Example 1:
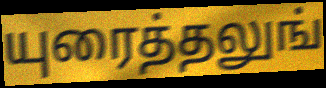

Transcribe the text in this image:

யுரைத்தலுங்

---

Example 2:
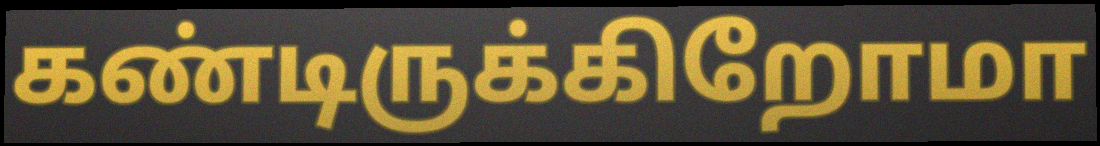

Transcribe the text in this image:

கண்டிருக்கிறோமா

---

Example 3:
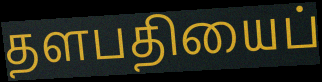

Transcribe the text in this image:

தளபதியைப்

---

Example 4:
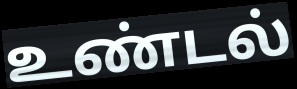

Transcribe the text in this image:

உண்டல்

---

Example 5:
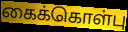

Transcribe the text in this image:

கைக்கொள்பு